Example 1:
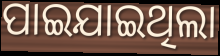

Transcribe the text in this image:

ପାଇଯାଇଥିଲା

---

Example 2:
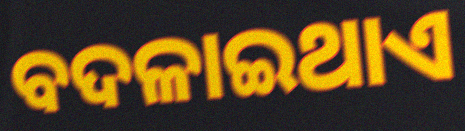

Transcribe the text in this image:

ବଦଳାଇଥାଏ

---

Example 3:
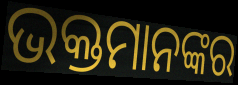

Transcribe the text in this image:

ଭକ୍ତମାନଙ୍କର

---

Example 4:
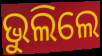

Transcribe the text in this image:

ଭୁଲିଲେ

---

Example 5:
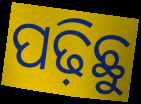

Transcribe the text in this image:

ପଢ଼ିଛୁ